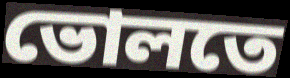
ভোলতে